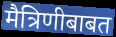
मैत्रिणीबाबत